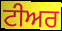
ਟੀਅਰ